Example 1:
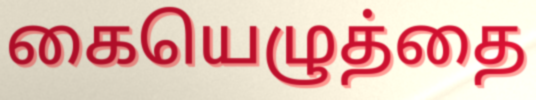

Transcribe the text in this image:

கையெழுத்தை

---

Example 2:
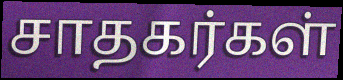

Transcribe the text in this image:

சாதகர்கள்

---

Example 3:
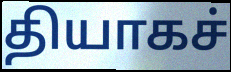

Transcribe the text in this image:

தியாகச்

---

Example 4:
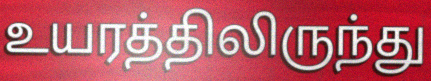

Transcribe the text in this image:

உயரத்திலிருந்து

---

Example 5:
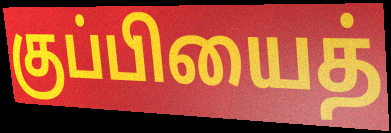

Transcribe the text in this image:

குப்பியைத்